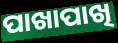
ପାଖାପାଖି